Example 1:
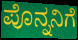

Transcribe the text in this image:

ಪೊನ್ನನಿಗೆ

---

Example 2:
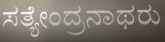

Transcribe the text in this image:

ಸತ್ಯೇಂದ್ರನಾಥರು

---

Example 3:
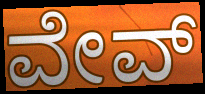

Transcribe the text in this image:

ವೇವ್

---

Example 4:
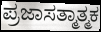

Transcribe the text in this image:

ಪ್ರಜಾಸತ್ಮಾತ್ಮಕ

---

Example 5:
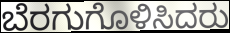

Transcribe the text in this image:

ಬೆರಗುಗೊಳಿಸಿದರು